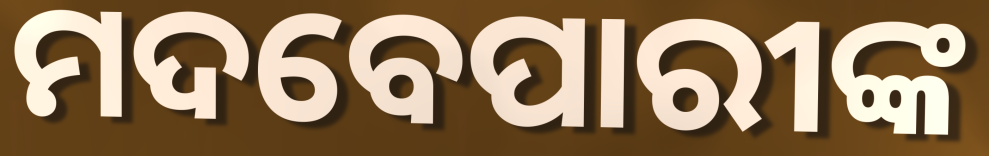
ମଦବେପାରୀଙ୍କ